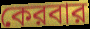
কেরবার